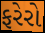
ફરેરો